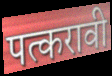
पत्करावी